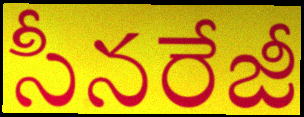
సీనరేజీ